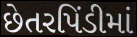
છેતરપિંડીમાં